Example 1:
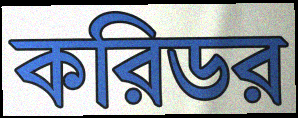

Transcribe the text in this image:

করিডর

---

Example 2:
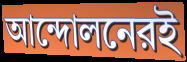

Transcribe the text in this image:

আন্দোলনেরই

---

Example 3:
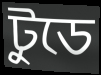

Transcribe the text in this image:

টুডে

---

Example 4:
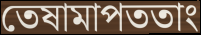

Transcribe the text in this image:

তেষামাপততাং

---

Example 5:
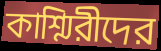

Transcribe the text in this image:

কাশ্মিরীদের